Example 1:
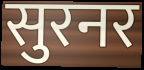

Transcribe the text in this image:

सुरनर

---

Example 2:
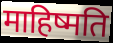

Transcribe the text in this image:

माहिष्मति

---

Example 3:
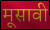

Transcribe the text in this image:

मूसावी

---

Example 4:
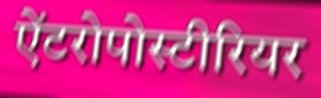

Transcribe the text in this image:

ऐंटरोपोस्टीरियर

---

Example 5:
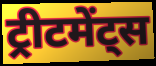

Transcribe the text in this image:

ट्रीटमेंट्स